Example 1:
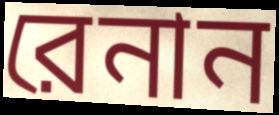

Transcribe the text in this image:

রেনান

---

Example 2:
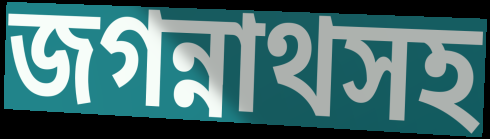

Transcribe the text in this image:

জগন্নাথসহ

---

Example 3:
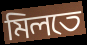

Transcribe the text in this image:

মিলতে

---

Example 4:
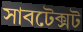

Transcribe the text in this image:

সাবটেক্সট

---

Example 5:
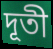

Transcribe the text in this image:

দূতী